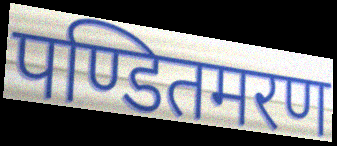
पण्डितमरण